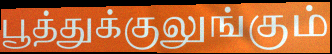
பூத்துக்குலுங்கும்